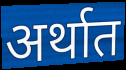
अर्थात